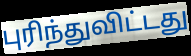
புரிந்துவிட்டது